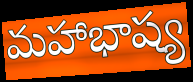
మహాభాష్య